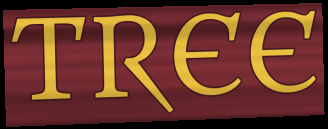
TREE